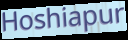
Hoshiapur